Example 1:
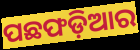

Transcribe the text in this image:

ପଛଫଡ଼ିଆର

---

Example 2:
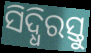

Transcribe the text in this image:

ସିଦ୍ଧିରସ୍ତୁ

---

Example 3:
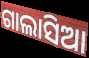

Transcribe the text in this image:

ଗାଲାସିଆ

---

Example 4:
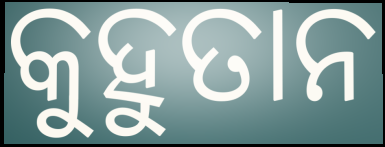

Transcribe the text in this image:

କୁହୁତାନ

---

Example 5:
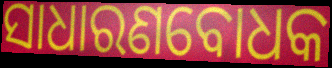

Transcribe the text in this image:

ସାଧାରଣବୋଧକ